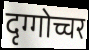
दृग्गोच्चर